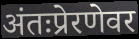
अंतःप्रेरणेवर